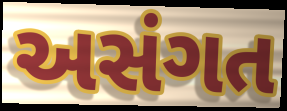
અસંગત